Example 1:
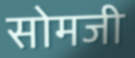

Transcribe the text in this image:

सोमजी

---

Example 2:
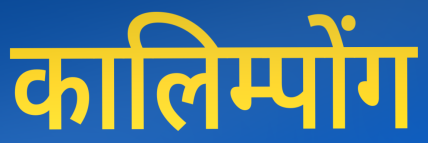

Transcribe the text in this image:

कालिम्पोंग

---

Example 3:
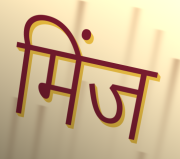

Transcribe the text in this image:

मिंज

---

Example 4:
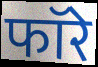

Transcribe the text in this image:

फॉरे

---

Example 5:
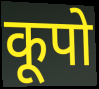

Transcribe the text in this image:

कूपो